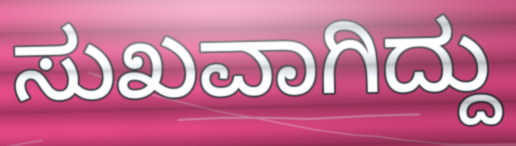
ಸುಖವಾಗಿದ್ದು